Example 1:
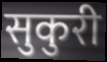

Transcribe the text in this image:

सुकुरी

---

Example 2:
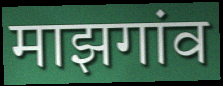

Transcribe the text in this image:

माझगांव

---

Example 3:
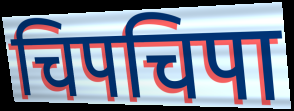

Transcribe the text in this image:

चिपचिपा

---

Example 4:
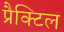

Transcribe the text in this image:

प्रैक्टिल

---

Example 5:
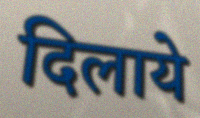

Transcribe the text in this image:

दिलाये